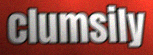
clumsily